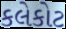
કલેકોટ